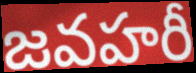
జవహరీ